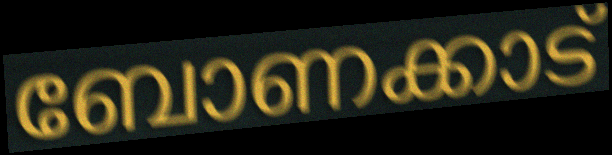
ബോണക്കാട്